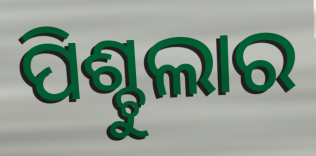
ପିଶ୍ଚୁଲାର